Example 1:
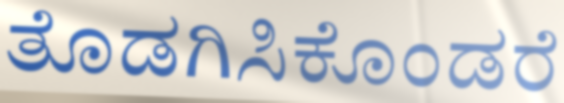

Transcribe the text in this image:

ತೊಡಗಿಸಿಕೊಂಡರೆ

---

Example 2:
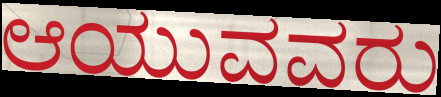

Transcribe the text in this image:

ಆಯುವವರು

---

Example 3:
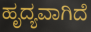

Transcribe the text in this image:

ಹೃದ್ಯವಾಗಿದೆ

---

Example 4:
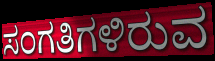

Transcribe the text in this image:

ಸಂಗತಿಗಳಿರುವ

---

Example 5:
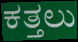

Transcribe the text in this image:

ಕತ್ತಲು